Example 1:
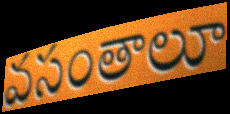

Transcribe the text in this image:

వసంతాలూ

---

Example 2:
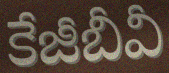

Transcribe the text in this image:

కేజీబీవీ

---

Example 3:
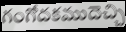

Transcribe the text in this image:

గంగోదకముదెచ్చి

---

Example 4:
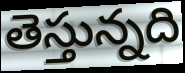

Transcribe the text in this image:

తెస్తున్నది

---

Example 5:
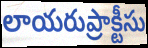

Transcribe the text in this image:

లాయరుప్రాక్టీసు